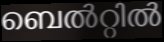
ബെൽറ്റിൽ